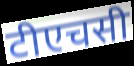
टीएचसी